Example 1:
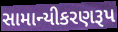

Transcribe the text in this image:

સામાન્યીકરણરૂપ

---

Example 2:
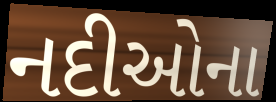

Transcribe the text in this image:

નદીઓના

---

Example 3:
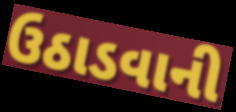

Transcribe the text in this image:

ઉઠાડવાની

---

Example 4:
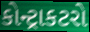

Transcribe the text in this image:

કોન્ટ્રાકટરો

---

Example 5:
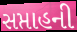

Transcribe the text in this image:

સપ્તાહની